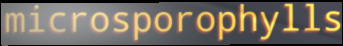
microsporophylls